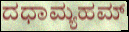
ದಧಾಮ್ಯಹಮ್